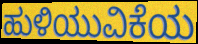
ಹುಳಿಯುವಿಕೆಯ